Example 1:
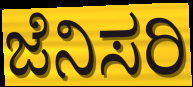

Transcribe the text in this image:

ಜೆನಿಸರಿ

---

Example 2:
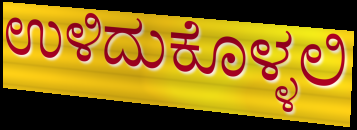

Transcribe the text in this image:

ಉಳಿದುಕೊಳ್ಳಲಿ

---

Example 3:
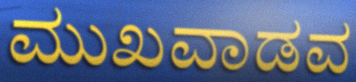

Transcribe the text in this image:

ಮುಖವಾಡವ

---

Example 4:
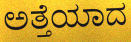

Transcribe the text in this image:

ಅತ್ತೆಯಾದ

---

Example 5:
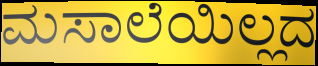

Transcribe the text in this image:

ಮಸಾಲೆಯಿಲ್ಲದ